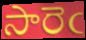
సారెఁ